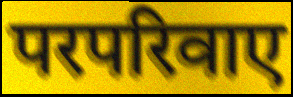
परपरिवाए